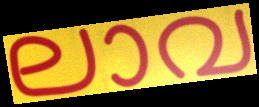
ലാവ